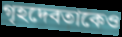
গৃহদেবতাকেও